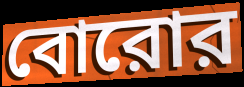
বোরোর